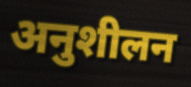
अनुशीलन